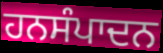
ਹਨਸੰਪਾਦਨ